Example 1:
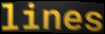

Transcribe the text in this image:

lines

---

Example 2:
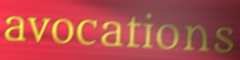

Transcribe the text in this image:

avocations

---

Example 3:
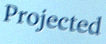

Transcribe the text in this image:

Projected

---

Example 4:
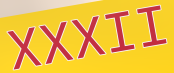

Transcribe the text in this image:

XXXII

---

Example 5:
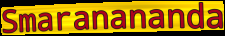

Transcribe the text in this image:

Smaranananda